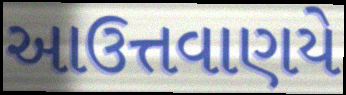
આઉત્તવાણયે